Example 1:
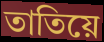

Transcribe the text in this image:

তাতিয়ে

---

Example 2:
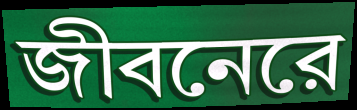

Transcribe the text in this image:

জীবনেরে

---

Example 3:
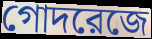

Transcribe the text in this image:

গোদরেজে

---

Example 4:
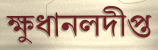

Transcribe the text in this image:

ক্ষুধানলদীপ্ত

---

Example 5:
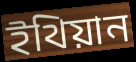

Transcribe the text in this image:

ইথিয়ান